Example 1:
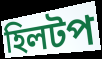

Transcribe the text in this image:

হিলটপ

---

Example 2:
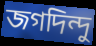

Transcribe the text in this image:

জগদিন্দু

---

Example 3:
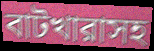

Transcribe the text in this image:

বাটখারাসহ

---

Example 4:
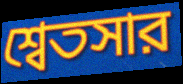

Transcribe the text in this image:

শ্বেতসার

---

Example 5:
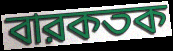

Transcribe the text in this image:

বারকতক